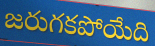
జరుగకపోయేది